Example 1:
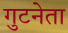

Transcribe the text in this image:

गुटनेता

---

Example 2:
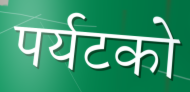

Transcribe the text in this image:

पर्यटको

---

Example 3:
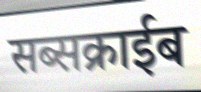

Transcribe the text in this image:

सब्सक्राईब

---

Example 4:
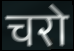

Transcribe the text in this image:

चरो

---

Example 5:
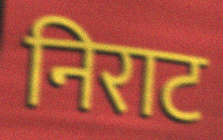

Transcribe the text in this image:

निराट